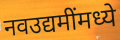
नवउद्यमींमध्ये